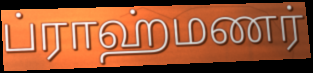
ப்ராஹ்மணர்